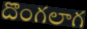
దొంగలాగ